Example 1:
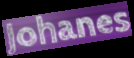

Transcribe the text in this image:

Johanes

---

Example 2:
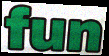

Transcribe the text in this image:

fun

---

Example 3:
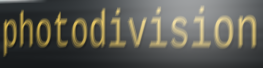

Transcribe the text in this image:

photodivision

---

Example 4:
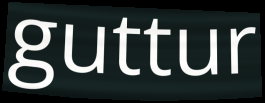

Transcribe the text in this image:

guttur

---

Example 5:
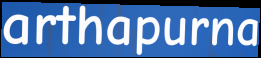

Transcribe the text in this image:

arthapurna